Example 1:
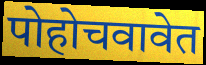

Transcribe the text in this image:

पोहोचवावेत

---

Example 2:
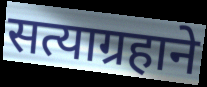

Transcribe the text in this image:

सत्याग्रहाने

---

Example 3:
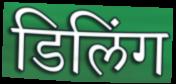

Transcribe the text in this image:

डिलिंग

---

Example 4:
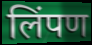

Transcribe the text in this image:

लिंपण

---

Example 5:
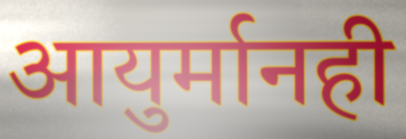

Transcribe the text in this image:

आयुर्मानही